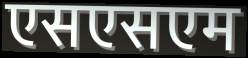
एसएसएम